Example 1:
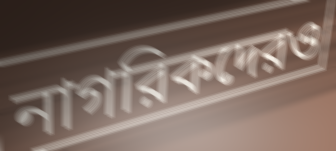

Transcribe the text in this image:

নাগরিকদেরও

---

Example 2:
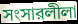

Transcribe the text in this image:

সংসারলীলা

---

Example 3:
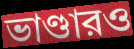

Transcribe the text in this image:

ভাণ্ডারও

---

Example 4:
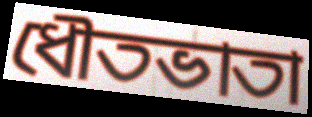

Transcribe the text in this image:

ধৌতভাতা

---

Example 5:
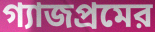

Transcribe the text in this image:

গ্যাজপ্রমের